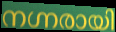
നഗ്നരായി